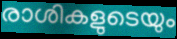
രാശികളുടെയും